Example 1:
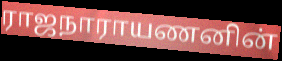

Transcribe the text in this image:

ராஜநாராயணனின்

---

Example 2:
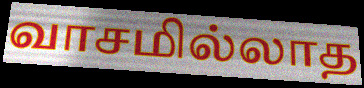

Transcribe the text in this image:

வாசமில்லாத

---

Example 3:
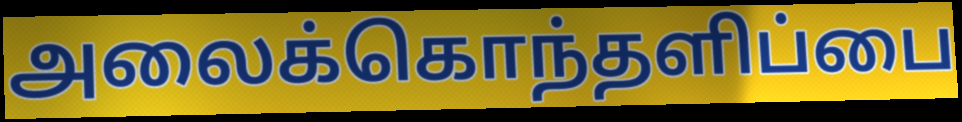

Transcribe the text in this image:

அலைக்கொந்தளிப்பை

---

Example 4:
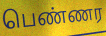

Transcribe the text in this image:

பெண்ணர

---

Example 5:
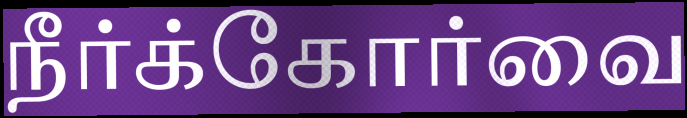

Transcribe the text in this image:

நீர்க்கோர்வை